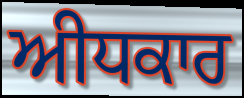
ਅੀਧਕਾਰ